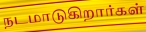
நடமாடுகிறார்கள்